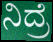
ನಿದ್ರೆ